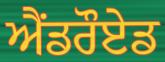
ਐਂਡਰੌਏਡ